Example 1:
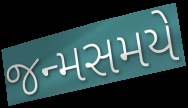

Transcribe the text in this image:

જન્મસમયે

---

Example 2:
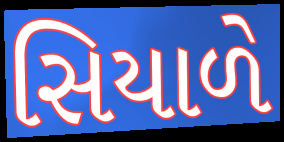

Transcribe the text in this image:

સિયાળે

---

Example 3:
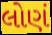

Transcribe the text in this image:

લોણં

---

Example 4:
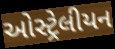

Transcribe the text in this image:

ઓસ્ટ્રેલીયન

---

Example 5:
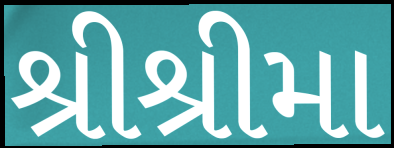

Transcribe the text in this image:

શ્રીશ્રીમા